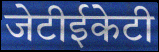
जेटीईकेटी